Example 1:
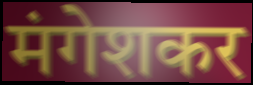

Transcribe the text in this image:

मंगेशकर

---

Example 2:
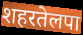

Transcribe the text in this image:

शहरतेलपा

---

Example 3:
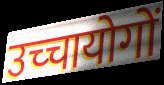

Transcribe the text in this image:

उच्‍चायोगों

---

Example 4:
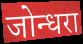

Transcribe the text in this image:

जोन्धरा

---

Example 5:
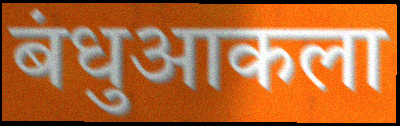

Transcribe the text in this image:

बंधुआकला